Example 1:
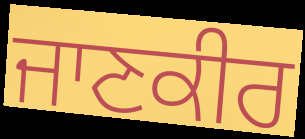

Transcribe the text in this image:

ਜਾਣਕੀਰ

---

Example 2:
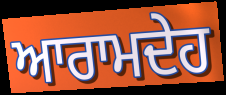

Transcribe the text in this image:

ਆਰਾਮਦੇਹ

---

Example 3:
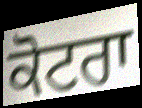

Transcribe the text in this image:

ਕੋਟਰਾ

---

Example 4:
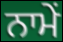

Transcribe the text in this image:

ਨਾਮੇਂ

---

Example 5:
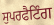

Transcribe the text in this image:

ਸੁਪਰਫੈਟਿੰਗ